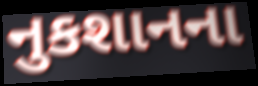
નુકશાનના